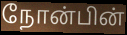
நோன்பின்